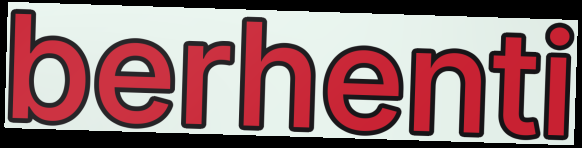
berhenti